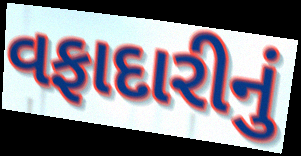
વફાદારીનું